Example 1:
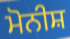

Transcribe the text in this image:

ਮੋਨੀਸ਼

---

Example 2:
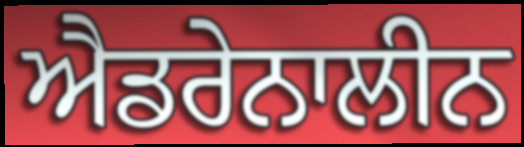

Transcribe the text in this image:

ਐਡਰੇਨਾਲੀਨ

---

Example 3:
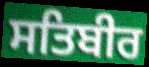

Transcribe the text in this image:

ਸਤਿਬੀਰ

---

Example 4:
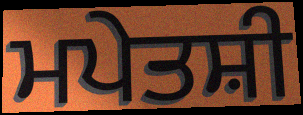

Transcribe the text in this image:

ਮਪੇਤਸ਼ੀ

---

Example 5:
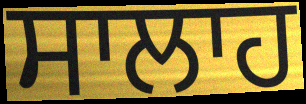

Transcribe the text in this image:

ਸਾਲਾਹ